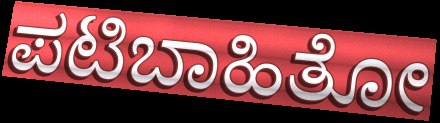
ಪಟಿಬಾಹಿತೋ